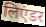
लिएंडर